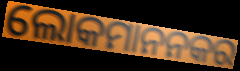
ଲୋକମାନନକର